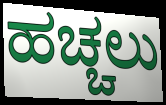
ಹಚ್ಚಲು